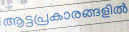
ആട്ടപ്രകാരങ്ങളിൽ